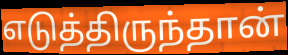
எடுத்திருந்தான்